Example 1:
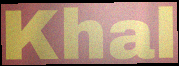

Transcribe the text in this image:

Khal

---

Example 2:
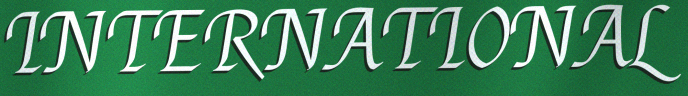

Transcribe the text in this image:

INTERNATIONAL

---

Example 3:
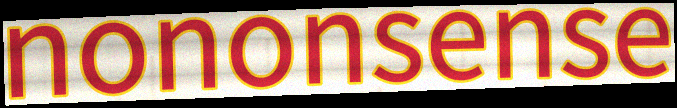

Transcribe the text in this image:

nononsense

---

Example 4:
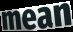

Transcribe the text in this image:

mean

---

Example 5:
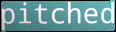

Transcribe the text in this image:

pitched